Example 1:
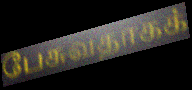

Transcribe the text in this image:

பேசுவதாகக்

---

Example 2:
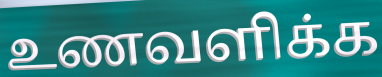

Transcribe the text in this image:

உணவளிக்க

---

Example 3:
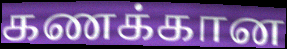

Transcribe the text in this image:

கணக்கான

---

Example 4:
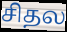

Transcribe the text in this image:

சிதல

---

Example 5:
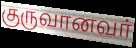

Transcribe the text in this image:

குருவானவர்